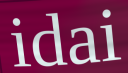
idai